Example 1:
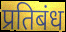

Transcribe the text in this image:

प्रतिबंध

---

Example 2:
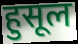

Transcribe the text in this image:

हुसूल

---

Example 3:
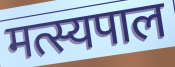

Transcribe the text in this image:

मत्स्यपाल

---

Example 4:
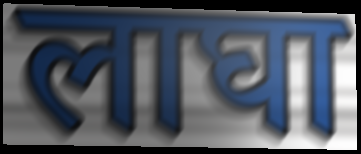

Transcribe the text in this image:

लाघा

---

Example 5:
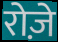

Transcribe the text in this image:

रोज़े